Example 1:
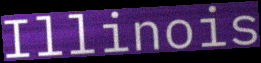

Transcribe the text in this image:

Illinois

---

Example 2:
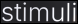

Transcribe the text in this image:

stimuli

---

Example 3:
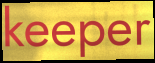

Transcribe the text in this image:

keeper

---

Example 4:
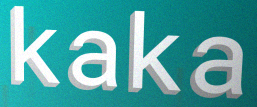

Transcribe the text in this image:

kaka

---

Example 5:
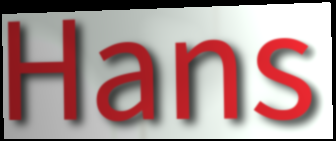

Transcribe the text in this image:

Hans